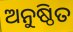
ଅନୁଷ୍ଠିତ